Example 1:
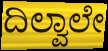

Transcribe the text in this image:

ದಿಲ್ವಾಲೇ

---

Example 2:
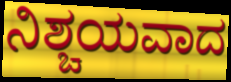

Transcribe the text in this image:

ನಿಶ್ಚಯವಾದ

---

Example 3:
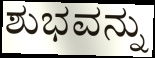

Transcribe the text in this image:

ಶುಭವನ್ನು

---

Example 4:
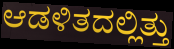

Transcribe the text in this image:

ಆಡಳಿತದಲ್ಲಿತ್ತು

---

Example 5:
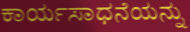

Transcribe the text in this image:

ಕಾರ್ಯಸಾಧನೆಯನ್ನು